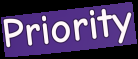
Priority